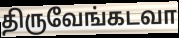
திருவேங்கடவா